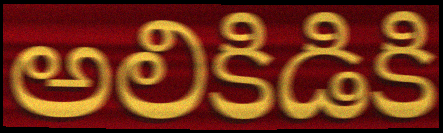
అలికిడికి